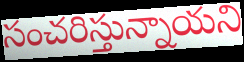
సంచరిస్తున్నాయని